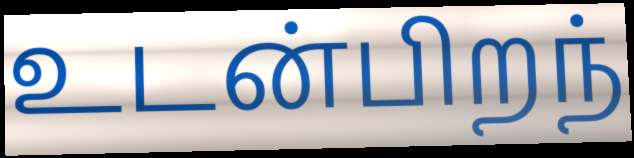
உடன்பிறந்